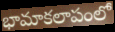
భామాకలాపంలో